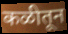
कळीतून